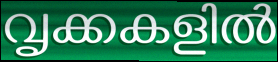
വൃക്കകളിൽ